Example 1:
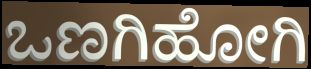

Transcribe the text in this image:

ಒಣಗಿಹೋಗಿ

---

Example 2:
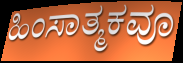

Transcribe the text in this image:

ಹಿಂಸಾತ್ಮಕವೂ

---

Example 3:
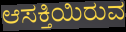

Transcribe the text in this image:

ಆಸಕ್ತಿಯಿರುವ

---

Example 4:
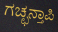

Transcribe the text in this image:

ಗಚ್ಛನ್ತಾಪಿ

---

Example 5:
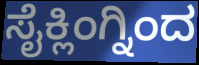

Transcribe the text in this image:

ಸೈಕ್ಲಿಂಗ್ನಿಂದ